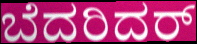
ಬೆದರಿದರ್